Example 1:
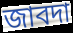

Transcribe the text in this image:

জাবদা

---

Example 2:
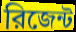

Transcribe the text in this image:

রিজেন্ট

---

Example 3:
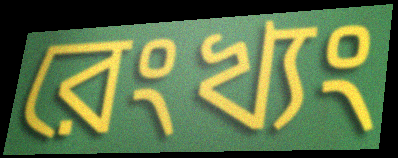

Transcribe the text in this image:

রেংখ্যং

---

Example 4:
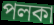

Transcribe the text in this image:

পলকা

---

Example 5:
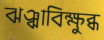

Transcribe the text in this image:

ঝঞ্ঝাবিক্ষুব্ধ